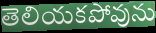
తెలియకపోవును